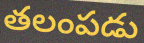
తలంపడు